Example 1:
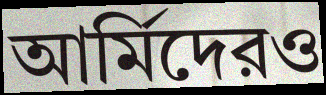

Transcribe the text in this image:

আর্মিদেরও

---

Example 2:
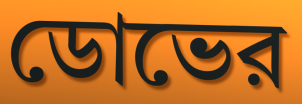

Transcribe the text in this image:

ডোভের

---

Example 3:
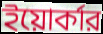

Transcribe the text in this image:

ইয়োর্কার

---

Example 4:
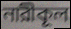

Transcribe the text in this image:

নারীকূল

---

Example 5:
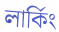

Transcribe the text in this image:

লার্কিং